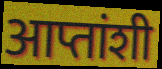
आप्तांशी